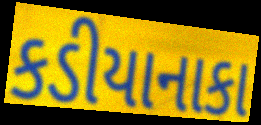
કડીયાનાકા